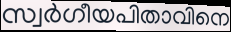
സ്വർഗീയപിതാവിനെ